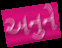
અનુને